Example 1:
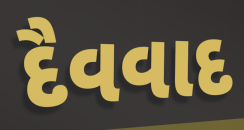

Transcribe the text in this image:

દૈવવાદ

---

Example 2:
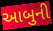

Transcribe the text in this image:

આબુની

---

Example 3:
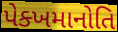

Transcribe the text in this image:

પેક્ખમાનોતિ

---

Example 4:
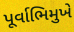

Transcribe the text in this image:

પૂર્વાભિમુખે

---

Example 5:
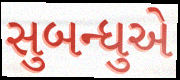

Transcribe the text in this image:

સુબન્ધુએ